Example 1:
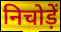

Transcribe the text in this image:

निचोड़ें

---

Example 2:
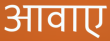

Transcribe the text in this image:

आवाए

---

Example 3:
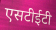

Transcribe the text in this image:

एसटीईटी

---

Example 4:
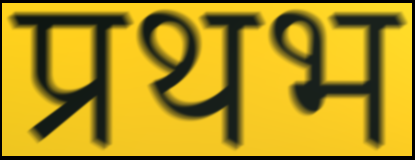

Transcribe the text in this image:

प्रथभ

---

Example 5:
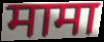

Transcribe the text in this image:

मामा